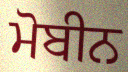
ਮੋਬੀਨ